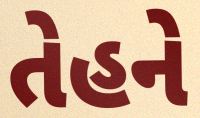
તેહને